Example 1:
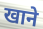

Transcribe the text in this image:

खाने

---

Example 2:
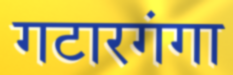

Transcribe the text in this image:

गटारगंगा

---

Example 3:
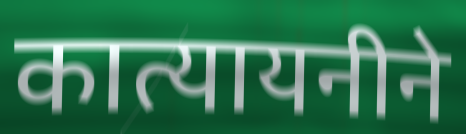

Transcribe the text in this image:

कात्यायनीने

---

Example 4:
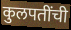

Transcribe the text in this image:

कुलपतींची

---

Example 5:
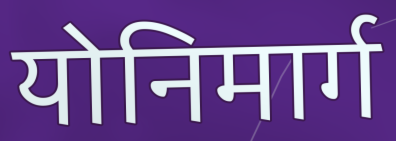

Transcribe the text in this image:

योनिमार्ग